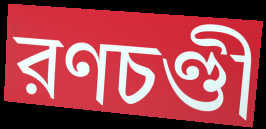
রণচণ্ডী